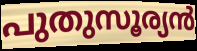
പുതുസൂര്യൻ